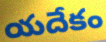
యదేకం